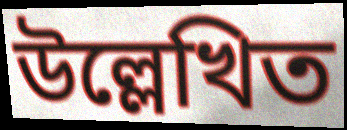
উল্লেখিত